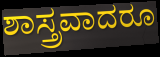
ಶಾಸ್ತ್ರವಾದರೂ